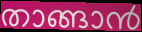
താങ്ങാൻ